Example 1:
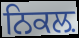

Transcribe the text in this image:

ਨਿਕਲ਼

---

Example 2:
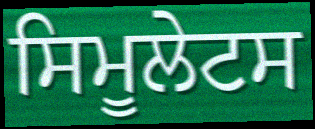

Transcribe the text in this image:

ਸਿਮੂਲੇਟਸ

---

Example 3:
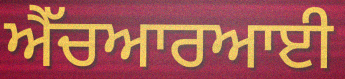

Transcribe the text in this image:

ਐੱਚਆਰਆਈ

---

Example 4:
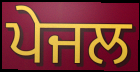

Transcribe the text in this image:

ਪੇਜਲ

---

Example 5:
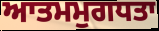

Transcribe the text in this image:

ਆਤਮਮੁਗਧਤਾ